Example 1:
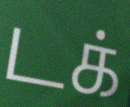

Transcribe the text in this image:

டக்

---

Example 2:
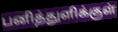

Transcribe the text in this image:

பனித்துளிக்குள்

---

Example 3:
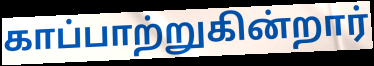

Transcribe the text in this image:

காப்பாற்றுகின்றார்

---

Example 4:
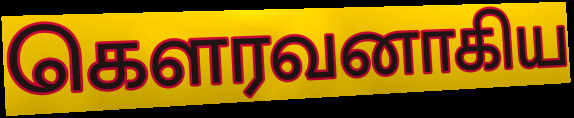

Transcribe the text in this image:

கௌரவனாகிய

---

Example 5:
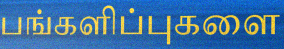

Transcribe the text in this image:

பங்களிப்புகளை